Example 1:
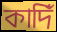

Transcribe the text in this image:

কাদিঁ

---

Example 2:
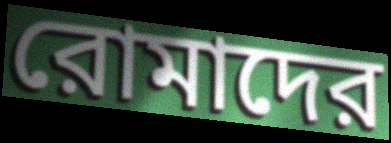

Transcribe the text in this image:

রোমাদের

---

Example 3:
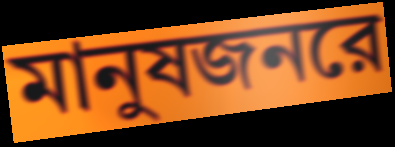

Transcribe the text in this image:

মানুষজনরে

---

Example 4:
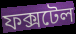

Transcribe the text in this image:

ফক্সটেল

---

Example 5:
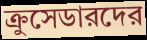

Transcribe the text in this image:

ক্রুসেডারদের